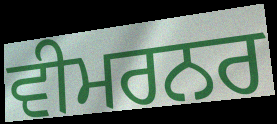
ਵੀਮਰਨਰ